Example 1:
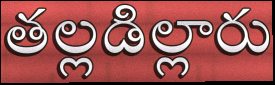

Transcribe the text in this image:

తల్లడిల్లారు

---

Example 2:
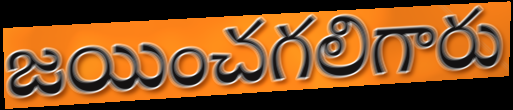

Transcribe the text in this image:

జయించగలిగారు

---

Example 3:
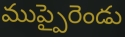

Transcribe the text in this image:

ముప్పైరెండు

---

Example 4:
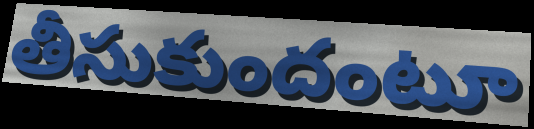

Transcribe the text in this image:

తీసుకుందంటూ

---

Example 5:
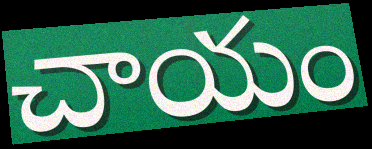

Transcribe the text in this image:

చాయం